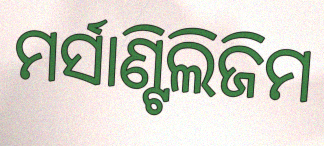
ମର୍ସାଣ୍ଟିଲିଜିମ